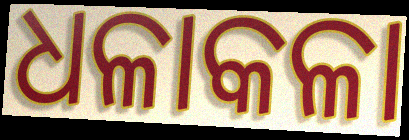
ଧଳାକଳା